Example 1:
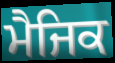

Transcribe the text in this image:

ਮੈਜਿਕ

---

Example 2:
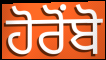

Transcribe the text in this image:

ਹੋਰੋਂਬੋ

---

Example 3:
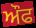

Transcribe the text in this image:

ਔਫ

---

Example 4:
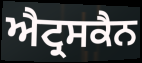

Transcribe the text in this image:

ਐਟ੍ਰਸਕੈਨ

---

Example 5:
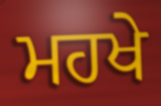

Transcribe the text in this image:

ਮਹਖੇ